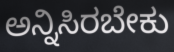
ಅನ್ನಿಸಿರಬೇಕು